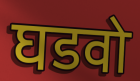
घडवो